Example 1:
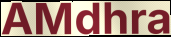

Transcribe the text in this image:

AMdhra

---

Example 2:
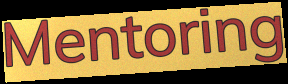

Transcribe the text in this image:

Mentoring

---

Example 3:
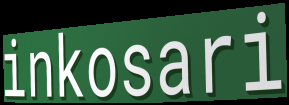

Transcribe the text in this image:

inkosari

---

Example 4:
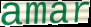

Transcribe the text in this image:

amar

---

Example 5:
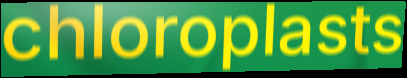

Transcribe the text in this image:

chloroplasts